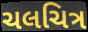
ચલચિત્ર